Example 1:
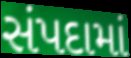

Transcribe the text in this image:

સંપદામાં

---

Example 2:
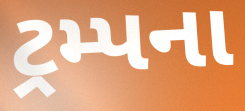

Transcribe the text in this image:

ટ્રમ્પના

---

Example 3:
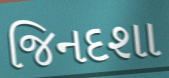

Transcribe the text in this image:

જિનદશા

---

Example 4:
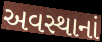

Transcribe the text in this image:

અવસ્થાનાં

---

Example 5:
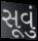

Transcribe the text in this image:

સૂવું